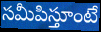
సమీపిస్తూంటే